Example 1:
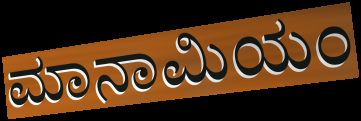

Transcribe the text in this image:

ಮಾನಾಮಿಯಂ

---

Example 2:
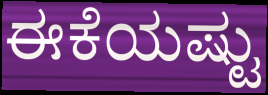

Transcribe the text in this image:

ಈಕೆಯಷ್ಟು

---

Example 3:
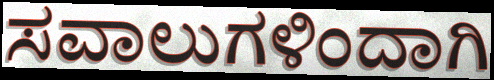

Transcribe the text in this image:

ಸವಾಲುಗಳಿಂದಾಗಿ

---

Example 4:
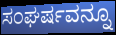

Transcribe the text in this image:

ಸಂಘರ್ಷವನ್ನೂ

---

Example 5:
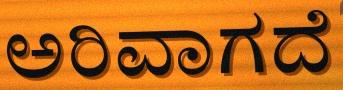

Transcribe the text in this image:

ಅರಿವಾಗದೆ